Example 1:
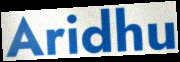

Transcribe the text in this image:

Aridhu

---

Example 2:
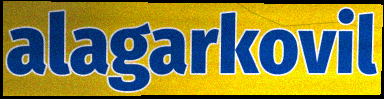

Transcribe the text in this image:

alagarkovil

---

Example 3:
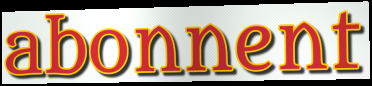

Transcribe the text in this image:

abonnent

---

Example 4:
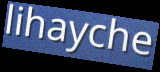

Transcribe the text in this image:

lihayche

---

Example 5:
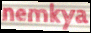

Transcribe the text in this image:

nemkya